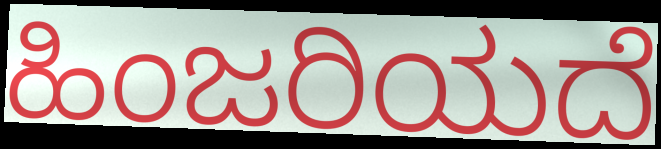
ಹಿಂಜರಿಯದೆ